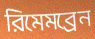
রিমেমব্রেন